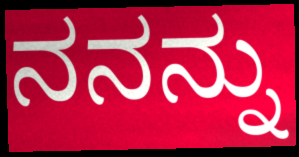
ನನನ್ನು